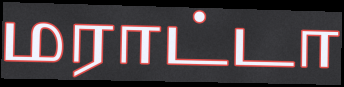
மராட்டா